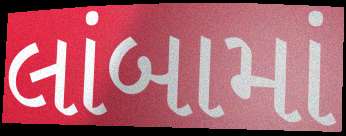
લાંબામાં